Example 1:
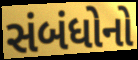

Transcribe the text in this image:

સંબંધોનો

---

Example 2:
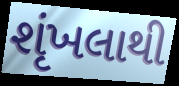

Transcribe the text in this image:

શૃંખલાથી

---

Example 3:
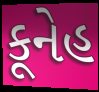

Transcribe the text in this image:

કૂનેહ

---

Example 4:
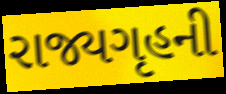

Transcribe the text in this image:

રાજ્યગૃહની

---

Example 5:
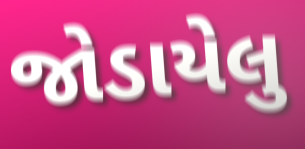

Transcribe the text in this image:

જોડાયેલુ